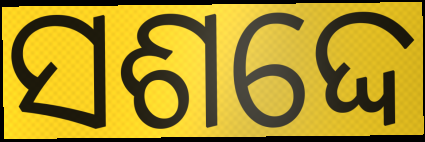
ସଶଦ୍ଦେ